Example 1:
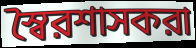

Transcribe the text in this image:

স্বৈরশাসকরা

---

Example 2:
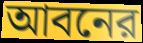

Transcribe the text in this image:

আবনের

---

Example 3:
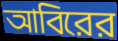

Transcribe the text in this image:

আবিরের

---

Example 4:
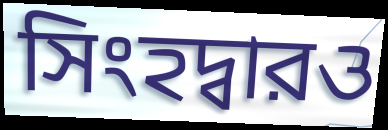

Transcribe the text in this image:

সিংহদ্বারও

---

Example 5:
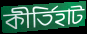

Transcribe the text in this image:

কীর্তিহাট